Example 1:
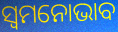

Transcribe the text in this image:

ସ୍ୱମନୋଭାବ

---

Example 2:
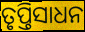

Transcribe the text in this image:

ତୃପ୍ତିସାଧନ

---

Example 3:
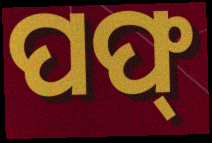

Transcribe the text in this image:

ପଫ୍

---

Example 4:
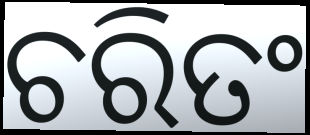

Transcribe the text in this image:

ଚରିତଂ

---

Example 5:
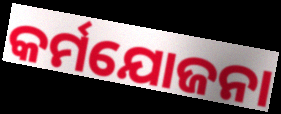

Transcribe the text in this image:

କର୍ମଯୋଜନା